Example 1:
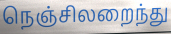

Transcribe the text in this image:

நெஞ்சிலறைந்து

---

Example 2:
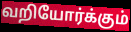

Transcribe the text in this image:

வறியோர்க்கும்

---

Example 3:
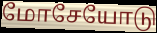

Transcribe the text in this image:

மோசேயோடு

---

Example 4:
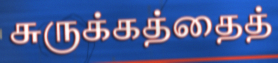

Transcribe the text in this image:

சுருக்கத்தைத்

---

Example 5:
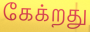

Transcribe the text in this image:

கேக்றது